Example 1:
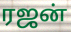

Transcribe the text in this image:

ரஜன்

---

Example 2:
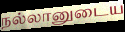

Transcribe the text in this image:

நல்லானுடைய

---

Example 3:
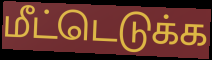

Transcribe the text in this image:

மீட்டெடுக்க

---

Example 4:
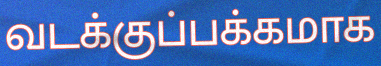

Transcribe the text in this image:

வடக்குப்பக்கமாக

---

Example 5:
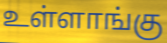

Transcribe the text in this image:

உள்ளாங்கு